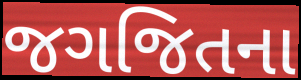
જગજિતના